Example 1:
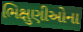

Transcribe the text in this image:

ભિક્ષુણીઓના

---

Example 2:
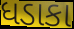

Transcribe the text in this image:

ધડાકા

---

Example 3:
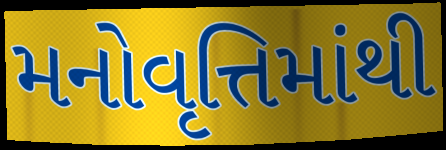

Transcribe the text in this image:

મનોવૃત્તિમાંથી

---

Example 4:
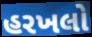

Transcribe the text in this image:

હરખલો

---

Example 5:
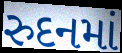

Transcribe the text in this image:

રુદનમાં